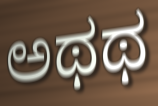
ಅಥಥ